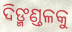
ଦିଙ୍ମଣ୍ଡଳକୁ